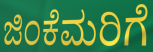
ಜಿಂಕೆಮರಿಗೆ